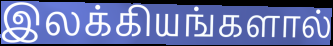
இலக்கியங்களால்